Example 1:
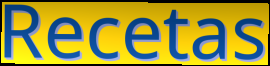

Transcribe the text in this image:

Recetas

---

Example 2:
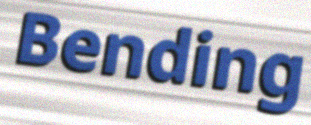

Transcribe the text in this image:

Bending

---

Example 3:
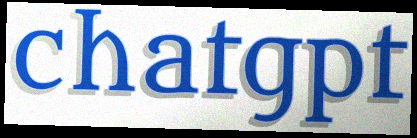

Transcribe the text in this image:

chatgpt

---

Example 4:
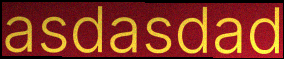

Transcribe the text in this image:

asdasdad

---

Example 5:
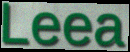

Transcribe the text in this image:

Leea